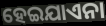
ହେଇଯାଏନା